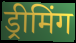
ड्रीमिंग